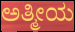
ಅತ್ಮೀಯ